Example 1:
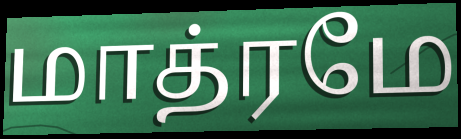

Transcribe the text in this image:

மாத்ரமே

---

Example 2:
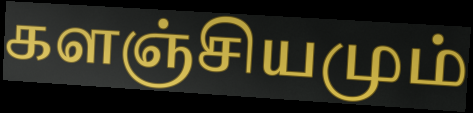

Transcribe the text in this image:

களஞ்சியமும்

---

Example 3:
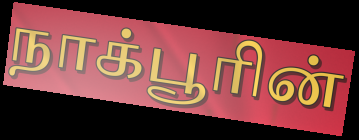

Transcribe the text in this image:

நாக்பூரின்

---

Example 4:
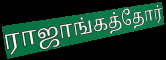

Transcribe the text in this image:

ராஜாங்கத்தோர்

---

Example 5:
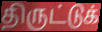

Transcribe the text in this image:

திருட்டுக்